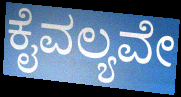
ಕೈವಲ್ಯವೇ